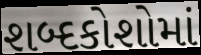
શબ્દકોશોમાં